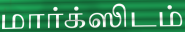
மார்க்ஸிடம்